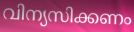
വിന്യസിക്കണം